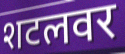
शटलवर